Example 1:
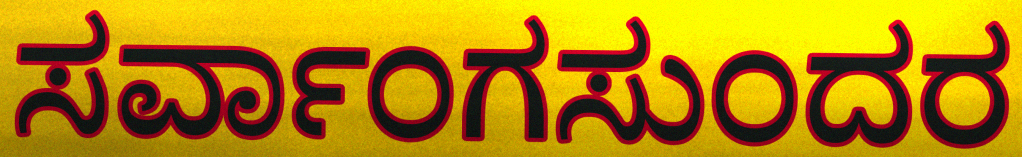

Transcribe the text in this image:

ಸರ್ವಾಂಗಸುಂದರ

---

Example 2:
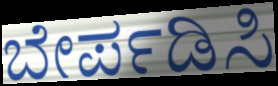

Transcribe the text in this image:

ಬೇರ್ಪಡಿಸಿ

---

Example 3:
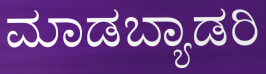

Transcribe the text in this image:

ಮಾಡಬ್ಯಾಡರಿ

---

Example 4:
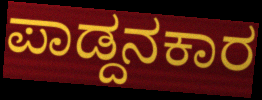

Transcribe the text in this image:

ಪಾಡ್ದನಕಾರ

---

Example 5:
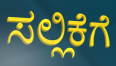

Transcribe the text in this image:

ಸಲ್ಲಿಕೆಗೆ